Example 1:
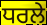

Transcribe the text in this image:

ਧਰਲੇ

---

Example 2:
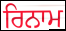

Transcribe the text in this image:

ਰਿਨਾਮ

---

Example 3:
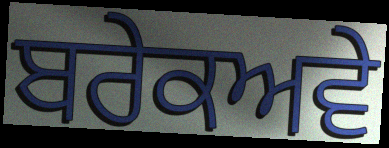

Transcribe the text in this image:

ਬਰੇਕਅਵੇ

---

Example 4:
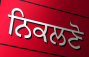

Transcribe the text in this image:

ਨਿਕਲਣੋ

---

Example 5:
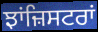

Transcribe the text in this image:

ਝਾਂਜ਼ਿਸਟਰਾਂ